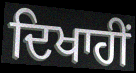
ਦਿਖਾਹੀਂ